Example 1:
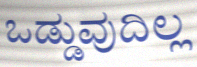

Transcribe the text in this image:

ಒಡ್ಡುವುದಿಲ್ಲ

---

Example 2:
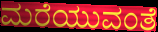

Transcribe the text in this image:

ಮರೆಯುವಂತೆ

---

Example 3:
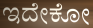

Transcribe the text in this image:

ಇದೇಕೋ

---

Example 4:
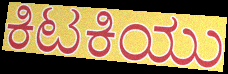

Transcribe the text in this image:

ಕಿಟಕಿಯು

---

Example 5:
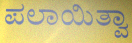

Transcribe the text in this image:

ಪಲಾಯಿತ್ವಾ